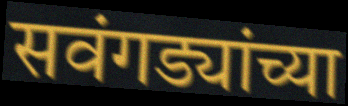
सवंगड्यांच्या